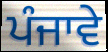
ਪੰਜਾਵੇ